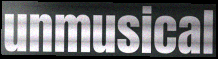
unmusical